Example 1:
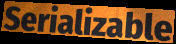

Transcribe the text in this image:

Serializable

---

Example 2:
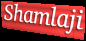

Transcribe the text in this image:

Shamlaji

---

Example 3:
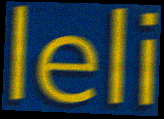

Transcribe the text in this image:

leli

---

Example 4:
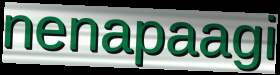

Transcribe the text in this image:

nenapaagi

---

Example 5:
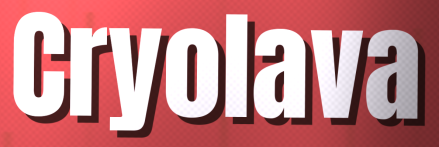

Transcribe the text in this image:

Cryolava